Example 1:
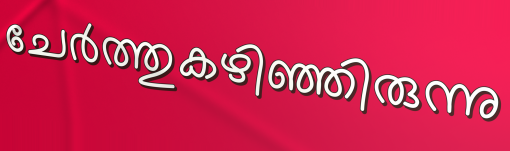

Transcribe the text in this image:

ചേർത്തുകഴിഞ്ഞിരുന്നു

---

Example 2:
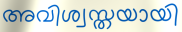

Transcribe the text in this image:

അവിശ്വസ്തയായി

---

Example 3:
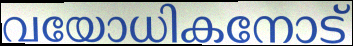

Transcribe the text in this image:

വയോധികനോട്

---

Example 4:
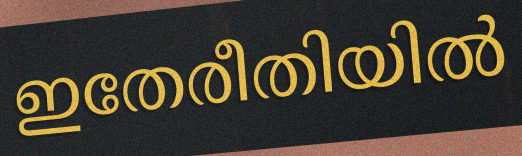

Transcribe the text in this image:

ഇതേരീതിയിൽ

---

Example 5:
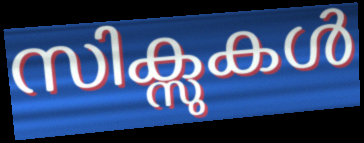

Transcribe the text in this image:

സിക്സുകൾ